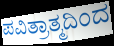
ಪವಿತ್ರಾತ್ಮದಿಂದ